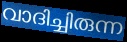
വാദിച്ചിരുന്ന